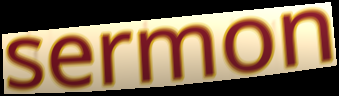
sermon